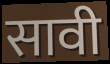
सावी